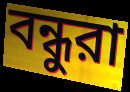
বন্ধুরা